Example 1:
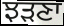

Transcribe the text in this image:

ਝੜਣਾ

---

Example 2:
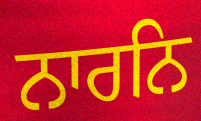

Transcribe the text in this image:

ਨਾਰਨਿ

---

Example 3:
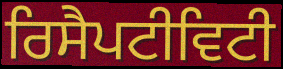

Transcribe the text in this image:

ਰਿਸੈਪਟੀਵਿਟੀ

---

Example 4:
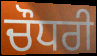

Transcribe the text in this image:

ਚੌਧਰੀ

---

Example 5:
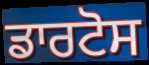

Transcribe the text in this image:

ਡਾਰਟੋਸ